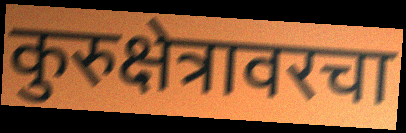
कुरुक्षेत्रावरचा